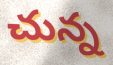
చున్న